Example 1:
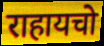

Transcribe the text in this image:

राहायचो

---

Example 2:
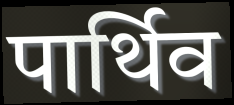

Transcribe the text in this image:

पार्थिव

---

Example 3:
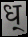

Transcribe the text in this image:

ध्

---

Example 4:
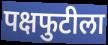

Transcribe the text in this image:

पक्षफुटीला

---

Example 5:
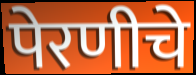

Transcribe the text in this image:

पेरणीचे